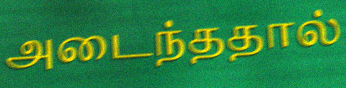
அடைந்ததால்